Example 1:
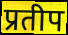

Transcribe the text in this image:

प्रतीप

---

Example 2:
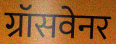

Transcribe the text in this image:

ग्रॉसवेनर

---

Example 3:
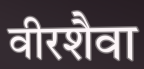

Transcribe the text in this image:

वीरशैवा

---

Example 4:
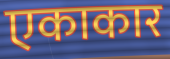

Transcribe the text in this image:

एकाकार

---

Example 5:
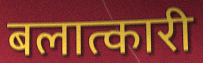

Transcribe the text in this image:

बलात्कारी